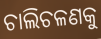
ଚାଲିଚଳଣକୁ